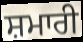
ਸ਼ਮਾਰੀ